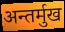
अन्तर्मुख